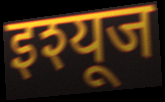
इश्यूज